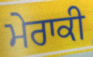
ਮੇਰਾਕੀ